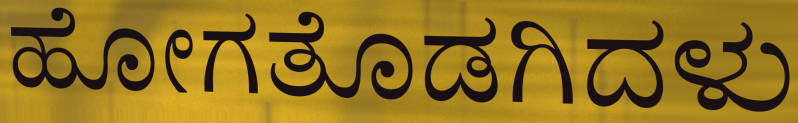
ಹೋಗತೊಡಗಿದಳು